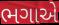
ભગાએ